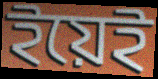
ইয়েই